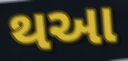
થઆ